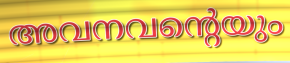
അവനവന്റെയും